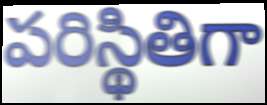
పరిస్థితిగా